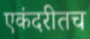
एकंदरीतच